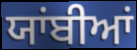
ਯਾਂਬੀਆਂ